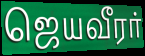
ஜெயவீரர்